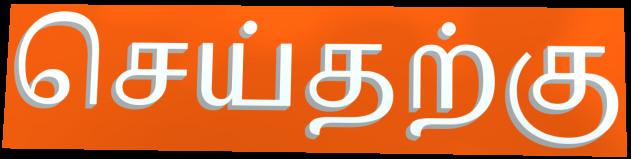
செய்தற்கு